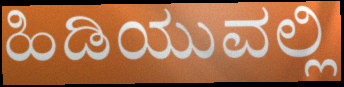
ಹಿಡಿಯುವಲ್ಲಿ